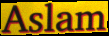
Aslam